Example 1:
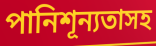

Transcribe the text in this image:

পানিশূন্যতাসহ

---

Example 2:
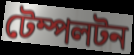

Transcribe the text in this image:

টেম্পলটন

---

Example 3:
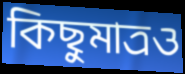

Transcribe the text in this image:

কিছুমাত্রও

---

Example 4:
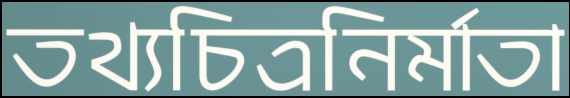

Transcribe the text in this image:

তথ্যচিত্রনির্মাতা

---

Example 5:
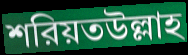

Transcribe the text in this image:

শরিয়তউল্লাহ